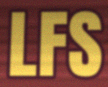
LFS